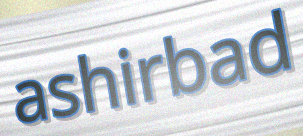
ashirbad